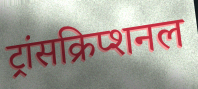
ट्रांसक्रिप्शनल